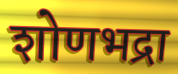
शोणभद्रा